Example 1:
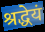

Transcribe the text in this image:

श्रद्धेयं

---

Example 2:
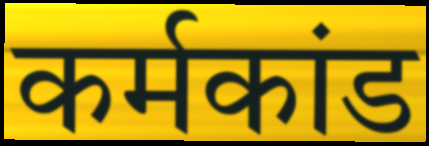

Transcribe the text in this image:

कर्मकांड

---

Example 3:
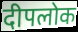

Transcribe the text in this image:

दीपलोक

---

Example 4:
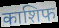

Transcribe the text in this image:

काशिफ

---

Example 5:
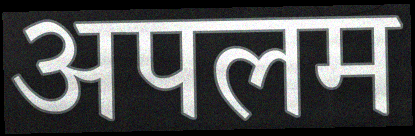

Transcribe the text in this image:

अपलम